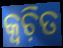
କ୍ୱଚ଼ିତ